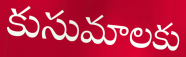
కుసుమాలకు